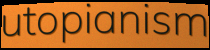
utopianism